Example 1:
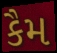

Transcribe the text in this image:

કૈમ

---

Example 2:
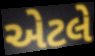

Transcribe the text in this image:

એટલે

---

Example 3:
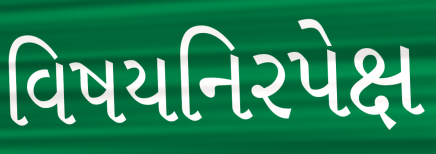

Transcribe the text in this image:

વિષયનિરપેક્ષ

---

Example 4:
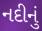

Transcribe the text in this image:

નદીનું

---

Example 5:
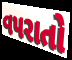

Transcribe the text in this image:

વપરાતો